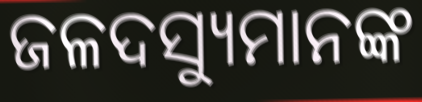
ଜଳଦସ୍ୟୁମାନଙ୍କ